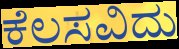
ಕೆಲಸವಿದು